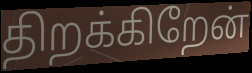
திறக்கிறேன்